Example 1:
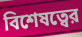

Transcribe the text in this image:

বিশেষত্বের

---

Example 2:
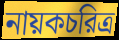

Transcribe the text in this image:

নায়কচরিত্র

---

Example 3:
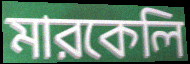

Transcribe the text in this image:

মারকেলি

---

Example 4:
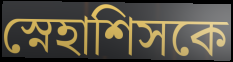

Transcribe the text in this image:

স্নেহাশিসকে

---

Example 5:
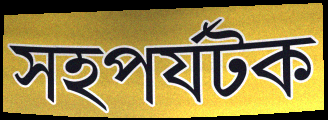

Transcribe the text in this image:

সহপর্যটক